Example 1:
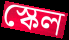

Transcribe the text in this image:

স্কেল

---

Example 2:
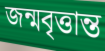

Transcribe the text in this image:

জন্মবৃত্তান্ত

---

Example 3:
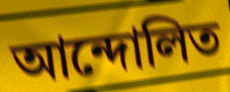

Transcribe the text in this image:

আন্দোলিত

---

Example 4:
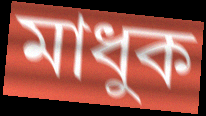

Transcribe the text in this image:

মাধুক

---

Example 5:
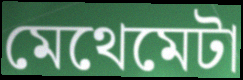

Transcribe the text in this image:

মেথেমেটা